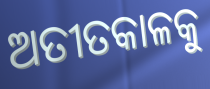
ଅତୀତକାଳକୁ